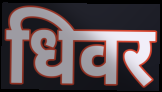
धिवर